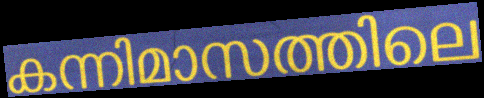
കന്നിമാസത്തിലെ